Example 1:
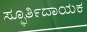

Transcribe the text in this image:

ಸ್ಫೂರ್ತಿದಾಯಕ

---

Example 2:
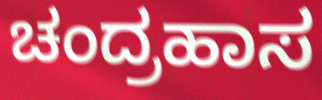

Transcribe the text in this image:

ಚಂದ್ರಹಾಸ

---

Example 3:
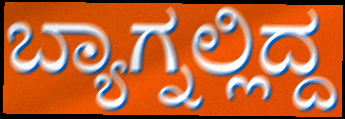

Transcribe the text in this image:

ಬ್ಯಾಗ್ನಲ್ಲಿದ್ದ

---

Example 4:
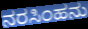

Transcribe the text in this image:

ನರಸಿಂಹನು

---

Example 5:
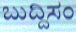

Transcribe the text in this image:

ಬುದ್ದಿಸಂ